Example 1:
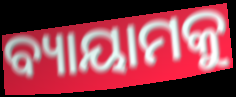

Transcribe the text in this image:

ବ୍ୟାୟାମକୁ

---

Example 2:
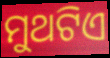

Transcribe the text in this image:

ମୁଥଟିଏ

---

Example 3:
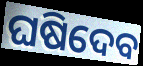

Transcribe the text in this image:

ଘଷିଦେବ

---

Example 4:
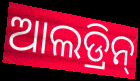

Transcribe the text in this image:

ଆଲଡ୍ରିନ୍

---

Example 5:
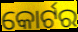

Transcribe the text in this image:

କୋର୍ଟର